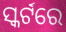
ସ୍କର୍ଟରେ